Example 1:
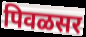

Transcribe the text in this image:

पिवळसर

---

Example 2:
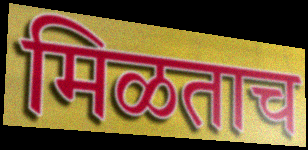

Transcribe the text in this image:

मिळताच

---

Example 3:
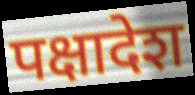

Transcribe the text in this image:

पक्षादेश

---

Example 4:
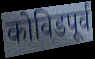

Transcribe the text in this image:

कोविडपूर्व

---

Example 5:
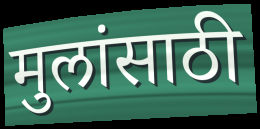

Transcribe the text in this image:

मुलांसाठी